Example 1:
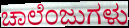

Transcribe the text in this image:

ಚಾಲೆಂಜುಗಳು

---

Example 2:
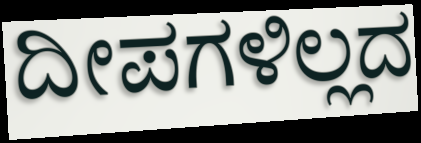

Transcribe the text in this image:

ದೀಪಗಳಿಲ್ಲದ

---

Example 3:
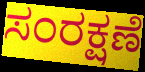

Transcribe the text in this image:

ಸಂರಕ್ಷಣೆ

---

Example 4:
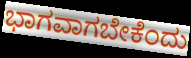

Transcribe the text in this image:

ಭಾಗವಾಗಬೇಕೆಂದು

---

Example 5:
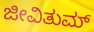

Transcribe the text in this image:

ಜೀವಿತುಮ್